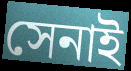
সেনাই